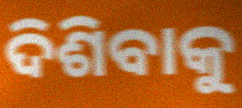
ଦିଶିବାକୁ